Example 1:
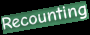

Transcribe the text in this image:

Recounting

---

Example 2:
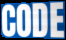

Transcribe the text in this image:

CODE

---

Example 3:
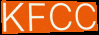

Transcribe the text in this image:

KFCC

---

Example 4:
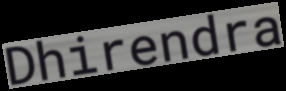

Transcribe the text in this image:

Dhirendra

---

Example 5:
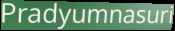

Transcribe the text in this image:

Pradyumnasuri